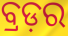
ବ୍ରଡ଼ର